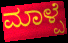
ಮಾಳ್ಪೆ